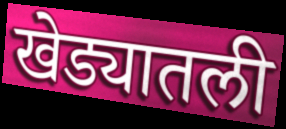
खेड्यातली